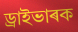
ড্ৰাইভাৰক